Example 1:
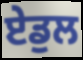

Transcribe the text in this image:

ਏਡੁਲ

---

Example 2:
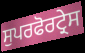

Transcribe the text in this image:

ਸੁਪਰਫੋਰਟ੍ਰੇਸ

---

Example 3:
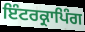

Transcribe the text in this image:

ਇੰਟਰਕ੍ਰਾਪਿੰਗ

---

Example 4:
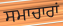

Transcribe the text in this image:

ਸਮਾਚਾਰਾਂ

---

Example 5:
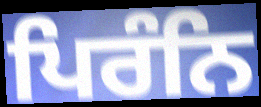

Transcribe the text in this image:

ਪਿਰੰਨਿ